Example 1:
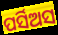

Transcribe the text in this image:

ପର୍ସିଅସ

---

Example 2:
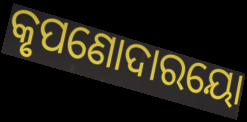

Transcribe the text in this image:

କୃପଣୋଦାରୟୋ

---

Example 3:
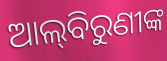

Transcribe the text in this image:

ଆଲ୍‌ବିରୁଣୀଙ୍କ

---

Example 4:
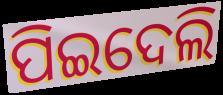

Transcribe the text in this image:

ପିଇଦେଲି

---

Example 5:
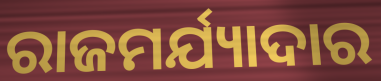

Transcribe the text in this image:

ରାଜମର୍ଯ୍ୟାଦାର